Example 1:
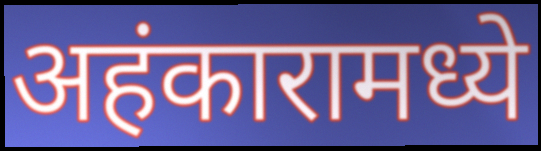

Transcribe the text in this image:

अहंकारामध्ये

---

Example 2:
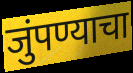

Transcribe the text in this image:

जुंपण्याचा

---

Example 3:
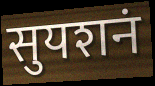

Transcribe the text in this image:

सुयशनं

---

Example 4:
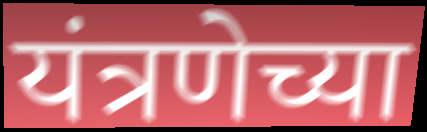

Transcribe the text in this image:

यंत्रणेच्या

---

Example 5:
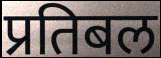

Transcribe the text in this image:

प्रतिबल